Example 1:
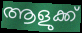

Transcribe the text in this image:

ആളുക്ക്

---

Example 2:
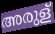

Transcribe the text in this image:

അരുള്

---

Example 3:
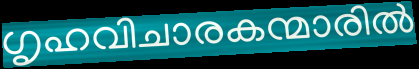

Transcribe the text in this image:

ഗൃഹവിചാരകന്മാരിൽ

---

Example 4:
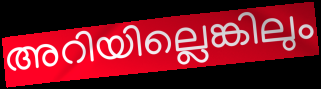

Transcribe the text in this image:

അറിയില്ലെങ്കിലും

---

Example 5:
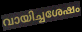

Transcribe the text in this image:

വായിച്ചശേഷം